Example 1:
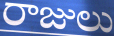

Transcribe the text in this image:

రాజులు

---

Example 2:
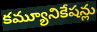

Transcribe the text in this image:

కమ్యూనికేషన్లు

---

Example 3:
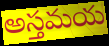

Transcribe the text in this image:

అస్తమయ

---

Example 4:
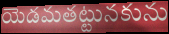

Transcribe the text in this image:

యెడమతట్టునకును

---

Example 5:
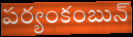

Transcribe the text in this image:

పర్యంకంబున్